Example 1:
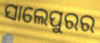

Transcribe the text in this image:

ସାଲେପୁରର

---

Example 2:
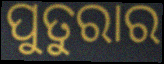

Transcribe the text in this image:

ପୁତୁରାର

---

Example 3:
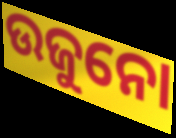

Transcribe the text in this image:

ଉଜୁନୋ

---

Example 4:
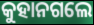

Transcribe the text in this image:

କୁହାନଗଲେ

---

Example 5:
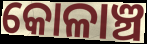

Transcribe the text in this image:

କୋଳାଞ୍ଚ